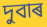
দুবাৰ